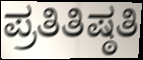
ಪ್ರತಿತಿಷ್ಠತಿ